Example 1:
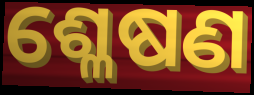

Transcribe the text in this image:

ଶ୍ଳେଷଣ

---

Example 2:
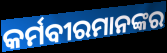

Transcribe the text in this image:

କର୍ମବୀରମାନଙ୍କର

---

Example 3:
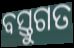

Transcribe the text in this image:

ବସ୍ତୁଗତ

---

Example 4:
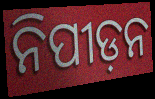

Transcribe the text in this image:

ନିପୀଡ଼ନ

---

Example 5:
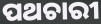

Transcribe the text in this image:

ପଥଚାରୀ